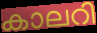
കാലറി